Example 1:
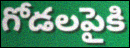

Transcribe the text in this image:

గోడలపైకి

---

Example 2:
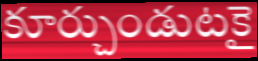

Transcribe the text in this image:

కూర్చుండుటకై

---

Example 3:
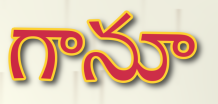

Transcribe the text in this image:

గానూ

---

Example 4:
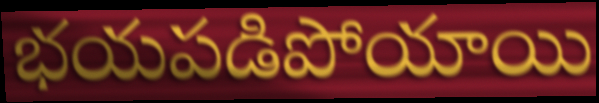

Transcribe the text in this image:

భయపడిపోయాయి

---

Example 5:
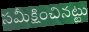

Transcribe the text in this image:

సమీక్షించినట్టు